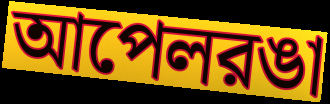
আপেলরঙা